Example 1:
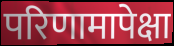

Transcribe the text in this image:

परिणामापेक्षा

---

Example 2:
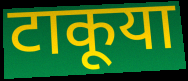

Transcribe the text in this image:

टाकूया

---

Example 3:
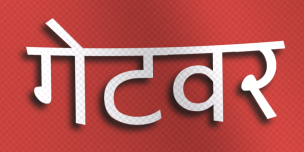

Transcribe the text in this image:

गेटवर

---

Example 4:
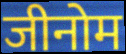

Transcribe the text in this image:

जीनोम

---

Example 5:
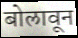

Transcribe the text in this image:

बोलावून